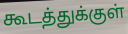
கூடத்துக்குள்